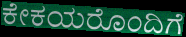
ಕೇಕಯರೊಂದಿಗೆ